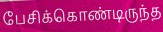
பேசிக்கொண்டிருந்த